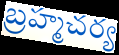
బ్రహ్మచర్య